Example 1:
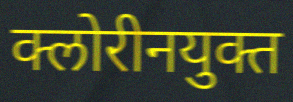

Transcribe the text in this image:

क्लोरीनयुक्त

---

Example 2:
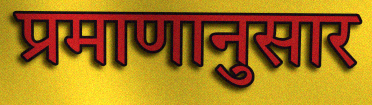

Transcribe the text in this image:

प्रमाणानुसार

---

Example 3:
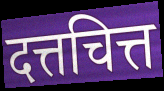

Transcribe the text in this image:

दत्तचित्त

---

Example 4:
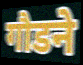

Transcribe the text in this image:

गौडने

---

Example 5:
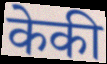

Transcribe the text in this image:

केकी